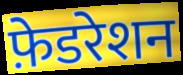
फ़ेडरेशन